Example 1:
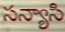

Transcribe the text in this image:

సన్యాసి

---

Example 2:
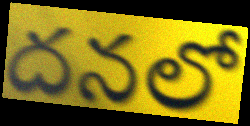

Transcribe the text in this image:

దనలో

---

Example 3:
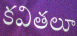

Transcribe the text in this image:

కవితలూ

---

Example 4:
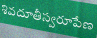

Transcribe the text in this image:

శివదూతీస్వరూపేణ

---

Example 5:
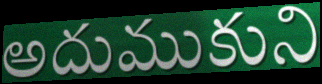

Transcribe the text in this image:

అదుముకుని